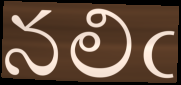
నలిఁ